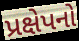
પ્રક્ષેપનો